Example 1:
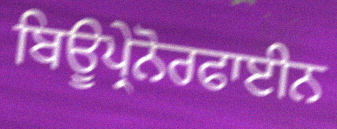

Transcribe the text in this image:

ਬਿਊਪ੍ਰੇਨੋਰਫਾਈਨ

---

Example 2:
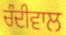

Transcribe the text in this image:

ਚੰਦੀਵਾਲ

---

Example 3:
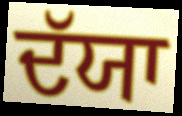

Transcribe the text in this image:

ਦੱਯਾ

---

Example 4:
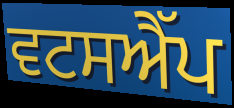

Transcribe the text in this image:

ਵਟਸਐੱਪ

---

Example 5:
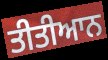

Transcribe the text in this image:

ਤੀਤੀਆਨ